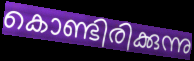
കൊണ്ടിരിക്കുന്നു